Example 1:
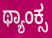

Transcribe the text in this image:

ಥ್ಯಾಂಕ್ಸ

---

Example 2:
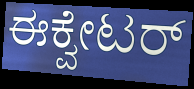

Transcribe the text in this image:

ಈಕ್ವೇಟರ್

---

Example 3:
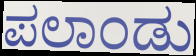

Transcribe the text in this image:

ಪಲಾಂಡು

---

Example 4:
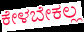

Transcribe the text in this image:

ಕೇಳಬೇಕಲ್ಲ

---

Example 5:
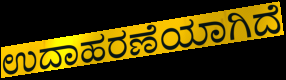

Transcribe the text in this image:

ಉದಾಹರಣೆಯಾಗಿದೆ